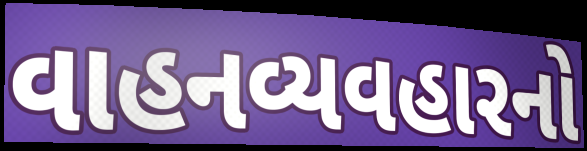
વાહનવ્યવહારનો